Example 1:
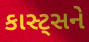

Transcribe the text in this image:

કાસ્ટ્સને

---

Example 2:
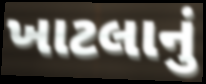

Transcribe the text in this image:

ખાટલાનું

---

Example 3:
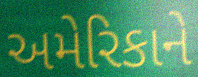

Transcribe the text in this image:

અમેરિકાને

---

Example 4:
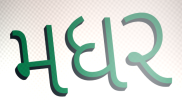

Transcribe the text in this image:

મધર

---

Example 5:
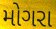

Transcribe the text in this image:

મોગરા